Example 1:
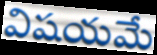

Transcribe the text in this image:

విషయమే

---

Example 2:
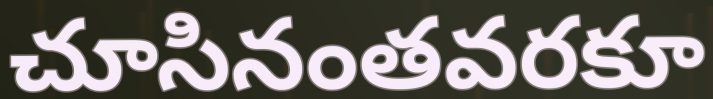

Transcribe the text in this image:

చూసినంతవరకూ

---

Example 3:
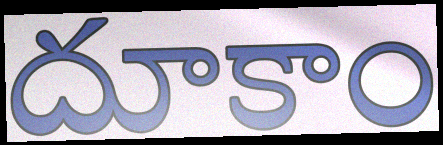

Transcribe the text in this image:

దూకాం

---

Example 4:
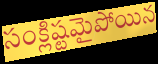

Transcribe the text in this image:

సంక్లిష్టమైపోయిన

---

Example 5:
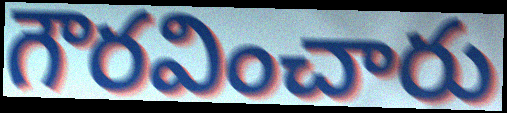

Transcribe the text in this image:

గౌరవించారు